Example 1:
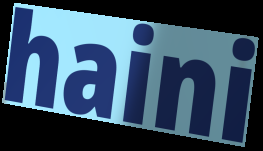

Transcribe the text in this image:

haini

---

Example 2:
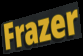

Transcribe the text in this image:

Frazer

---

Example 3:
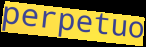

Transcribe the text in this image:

perpetuo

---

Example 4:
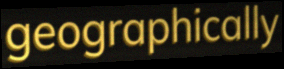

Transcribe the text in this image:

geographically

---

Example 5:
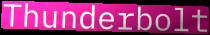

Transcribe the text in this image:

Thunderbolt